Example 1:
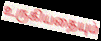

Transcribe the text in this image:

உருகியதையும்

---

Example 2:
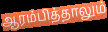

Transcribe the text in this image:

ஆரம்பித்தாலும்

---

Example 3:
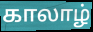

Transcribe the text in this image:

காலாழ்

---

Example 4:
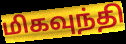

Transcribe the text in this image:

மிகவுந்தி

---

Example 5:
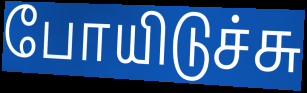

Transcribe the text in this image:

போயிடுச்சு